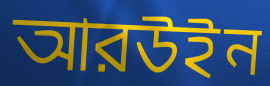
আরউইন